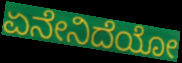
ಏನೇನಿದೆಯೋ